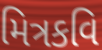
મિત્રકવિ